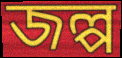
জল্প